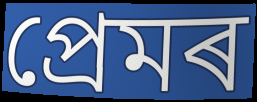
প্ৰেমৰ